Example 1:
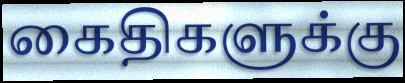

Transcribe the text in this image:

கைதிகளுக்கு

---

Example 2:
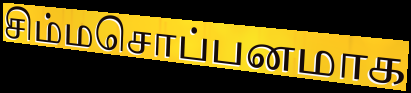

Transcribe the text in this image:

சிம்மசொப்பனமாக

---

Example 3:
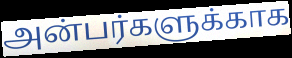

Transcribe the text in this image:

அன்பர்களுக்காக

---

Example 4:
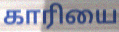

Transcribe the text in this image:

காரியை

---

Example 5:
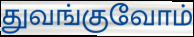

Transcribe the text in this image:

துவங்குவோம்